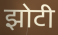
झोटी